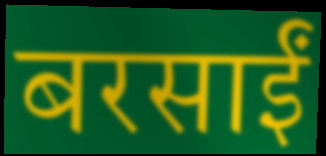
बरसाईं